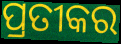
ପ୍ରତୀକର